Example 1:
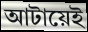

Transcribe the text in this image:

আটায়েই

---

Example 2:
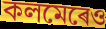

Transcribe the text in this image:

কলমেৰেও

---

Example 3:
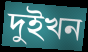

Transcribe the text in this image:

দুইখন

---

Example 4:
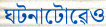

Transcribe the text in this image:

ঘটনাটোৱেও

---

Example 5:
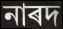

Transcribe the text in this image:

নাৰদ